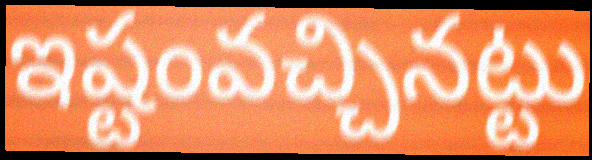
ఇష్టంవచ్చినట్టు